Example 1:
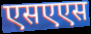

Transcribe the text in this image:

एसएएस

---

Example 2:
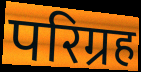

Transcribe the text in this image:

परिग्रह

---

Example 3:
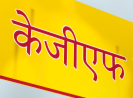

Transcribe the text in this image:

केजीएफ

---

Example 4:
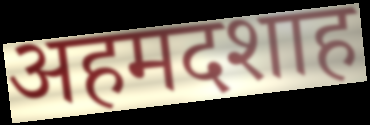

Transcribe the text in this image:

अहमदशाह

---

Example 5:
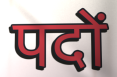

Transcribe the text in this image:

पदों